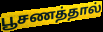
பூசணத்தால்